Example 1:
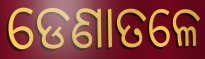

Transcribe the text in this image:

ଡେଣାତଳେ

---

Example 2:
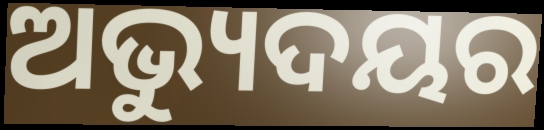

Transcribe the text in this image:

ଅଭ୍ୟୁଦୟର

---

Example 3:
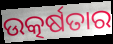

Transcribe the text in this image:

ଉତ୍କର୍ଷତାର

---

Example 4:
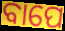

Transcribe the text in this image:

ବାପେ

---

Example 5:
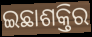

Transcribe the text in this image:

ଇଛାଶକ୍ତିର